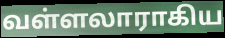
வள்ளலாராகிய